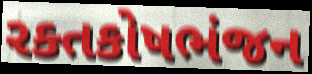
રક્તકોષભંજન